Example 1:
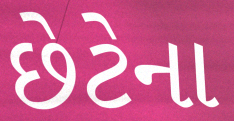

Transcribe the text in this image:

છેટેના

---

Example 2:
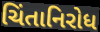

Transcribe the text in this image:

ચિંતાનિરોધ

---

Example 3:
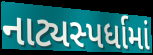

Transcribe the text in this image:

નાટ્યસ્પર્ધામાં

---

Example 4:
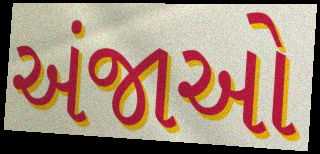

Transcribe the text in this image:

અંજાઓ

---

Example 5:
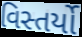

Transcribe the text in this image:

વિસ્તર્યો